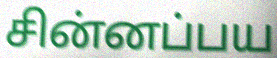
சின்னப்பய